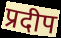
प्रदीप